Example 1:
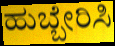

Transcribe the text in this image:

ಹುಬ್ಬೇರಿಸಿ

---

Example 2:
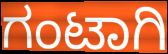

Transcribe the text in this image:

ಗಂಟಾಗಿ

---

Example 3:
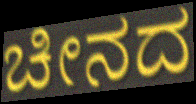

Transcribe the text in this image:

ಚೀನದ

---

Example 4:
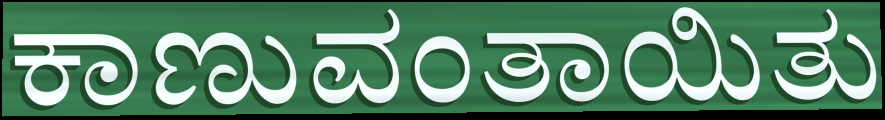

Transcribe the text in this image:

ಕಾಣುವಂತಾಯಿತು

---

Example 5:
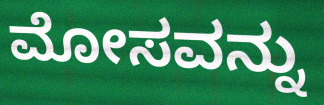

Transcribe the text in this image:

ಮೋಸವನ್ನು